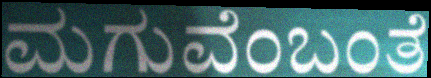
ಮಗುವೆಂಬಂತೆ